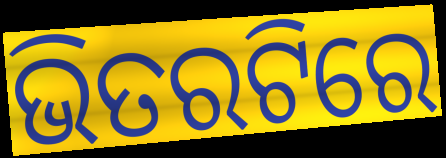
ଭିତରଟିରେ